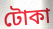
টোকা